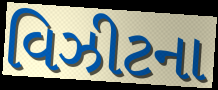
વિઝીટના